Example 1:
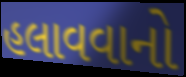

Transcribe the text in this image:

હલાવવાનો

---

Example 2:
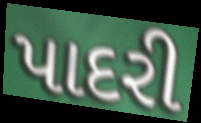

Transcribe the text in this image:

પાદરી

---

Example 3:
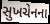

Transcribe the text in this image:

સુખચેનના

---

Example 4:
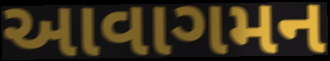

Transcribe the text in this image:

આવાગમન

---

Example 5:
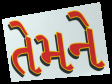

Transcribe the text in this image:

તેમને